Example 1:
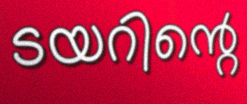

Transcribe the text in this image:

ടയറിന്റെ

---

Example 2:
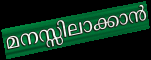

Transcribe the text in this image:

മനസ്സിലാക്കാൻ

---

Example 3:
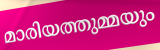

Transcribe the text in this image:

മാരിയത്തുമ്മയും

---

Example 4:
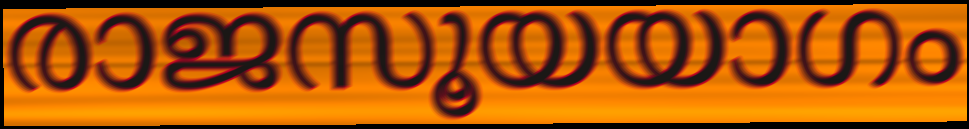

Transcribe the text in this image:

രാജസൂയയാഗം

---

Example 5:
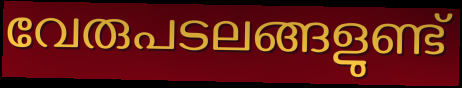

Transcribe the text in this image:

വേരുപടലങ്ങളുണ്ട്